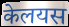
केलयस